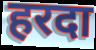
हरदा